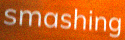
smashing